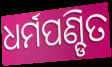
ଧର୍ମପଣ୍ଡିତ